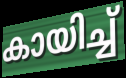
കായിച്ച്